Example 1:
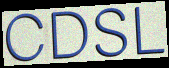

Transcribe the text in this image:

CDSL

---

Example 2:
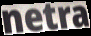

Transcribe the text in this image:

netra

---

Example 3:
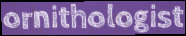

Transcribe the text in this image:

ornithologist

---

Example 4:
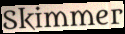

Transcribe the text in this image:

Skimmer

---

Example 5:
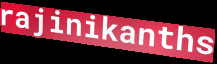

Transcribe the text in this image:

rajinikanths